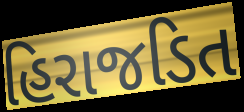
હિરાજડિત